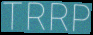
TRRP